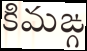
కిమఙ్గ